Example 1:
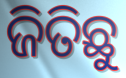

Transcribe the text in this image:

ଜିତିଛୁ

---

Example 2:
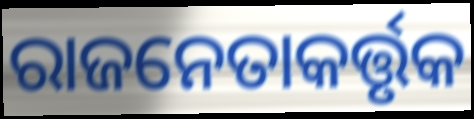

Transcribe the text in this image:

ରାଜନେତାକର୍ତ୍ତୃକ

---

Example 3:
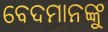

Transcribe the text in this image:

ବେଦମାନଙ୍କୁ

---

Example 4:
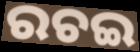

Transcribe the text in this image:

ରଚଇ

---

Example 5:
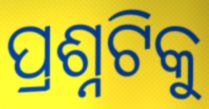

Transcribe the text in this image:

ପ୍ରଶ୍ନଟିକୁ